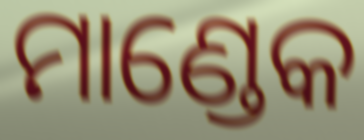
ମାଣ୍ଡେକ